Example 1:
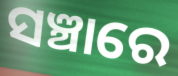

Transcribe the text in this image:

ସଞ୍ଚାରେ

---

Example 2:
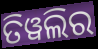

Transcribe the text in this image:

ତିୱଲିର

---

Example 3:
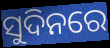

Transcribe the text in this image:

ସୁଦିନରେ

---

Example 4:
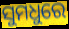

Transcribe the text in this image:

ସୁମଧୁରେ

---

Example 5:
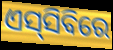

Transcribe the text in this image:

ଏସ୍‌ସିବିରେ